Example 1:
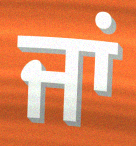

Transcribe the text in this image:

ਜਾਂ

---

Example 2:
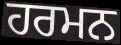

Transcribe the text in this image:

ਹਰਮਨ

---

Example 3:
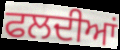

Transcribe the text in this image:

ਫਲਦੀਆਂ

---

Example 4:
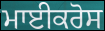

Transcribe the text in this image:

ਮਾਈਕਰੋਸ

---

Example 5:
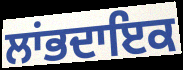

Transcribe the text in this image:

ਲਾਂਭਦਾਇਕ